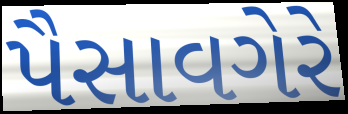
પૈસાવગેરે